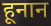
हूनान